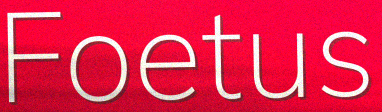
Foetus